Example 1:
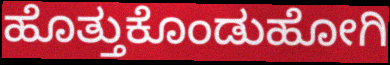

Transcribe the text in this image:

ಹೊತ್ತುಕೊಂಡುಹೋಗಿ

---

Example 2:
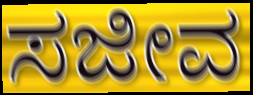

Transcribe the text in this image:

ಸಜೀವ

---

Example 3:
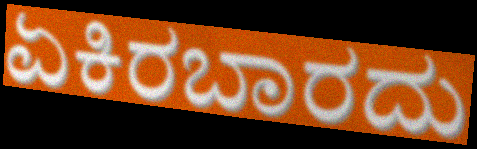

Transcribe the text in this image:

ಏಕಿರಬಾರದು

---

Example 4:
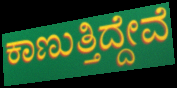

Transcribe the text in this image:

ಕಾಣುತ್ತಿದ್ದೇವೆ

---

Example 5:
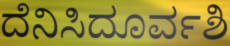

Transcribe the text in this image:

ದೆನಿಸಿದೂರ್ವಶಿ